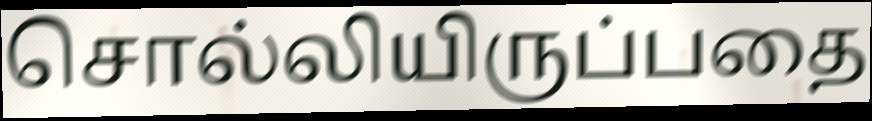
சொல்லியிருப்பதை